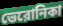
ভেরোনিকা